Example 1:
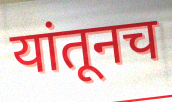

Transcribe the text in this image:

यांतूनच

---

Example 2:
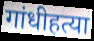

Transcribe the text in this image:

गांधीहत्या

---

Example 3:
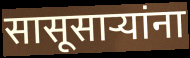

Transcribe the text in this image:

सासूसाऱ्यांना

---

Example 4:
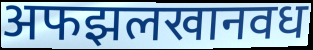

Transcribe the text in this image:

अफझलखानवध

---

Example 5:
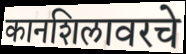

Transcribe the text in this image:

कानशिलावरचे